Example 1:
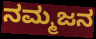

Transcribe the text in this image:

ನಮ್ಮಜನ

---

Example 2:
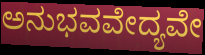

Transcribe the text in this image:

ಅನುಭವವೇದ್ಯವೇ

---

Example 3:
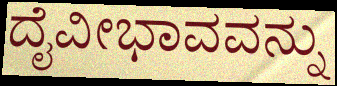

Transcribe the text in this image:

ದೈವೀಭಾವವನ್ನು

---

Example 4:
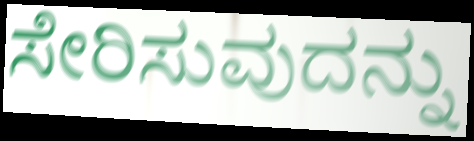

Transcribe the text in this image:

ಸೇರಿಸುವುದನ್ನು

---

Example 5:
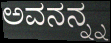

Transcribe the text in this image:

ಅವನನ್ನ್ನ